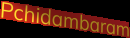
Pchidambaram